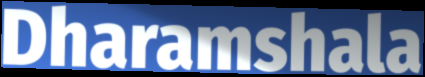
Dharamshala